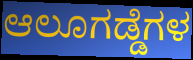
ಆಲೂಗಡ್ಡೆಗಳ